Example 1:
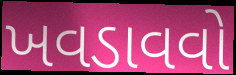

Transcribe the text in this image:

ખવડાવવો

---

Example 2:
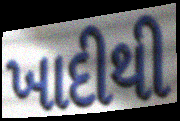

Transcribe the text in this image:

ખાદીથી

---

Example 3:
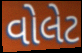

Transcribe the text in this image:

વોલેટ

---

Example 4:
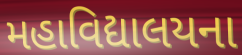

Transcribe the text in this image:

મહાવિદ્યાલયના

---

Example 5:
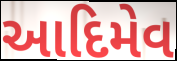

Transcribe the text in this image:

આદિમેવ